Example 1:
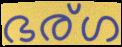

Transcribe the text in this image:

ഭര്ഗ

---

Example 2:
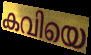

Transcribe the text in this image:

കവിയെ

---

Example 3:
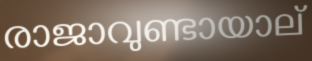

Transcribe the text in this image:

രാജാവുണ്ടായാല്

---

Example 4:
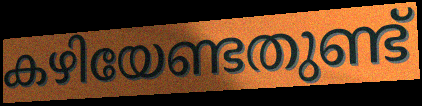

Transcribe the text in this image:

കഴിയേണ്ടതുണ്ട്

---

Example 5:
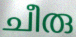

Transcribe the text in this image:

ചീരു